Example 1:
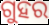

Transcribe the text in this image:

ଗୁହର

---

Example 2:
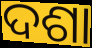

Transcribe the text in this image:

ଦଶା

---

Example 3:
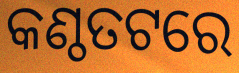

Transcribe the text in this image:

କଣ୍ଠତଟରେ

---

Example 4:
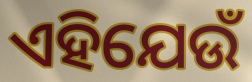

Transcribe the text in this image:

ଏହିଯେଉଁ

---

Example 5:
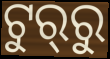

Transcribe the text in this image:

ଟୁର୍‍ରୁ